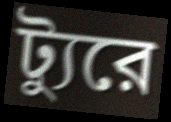
ট্যুরে